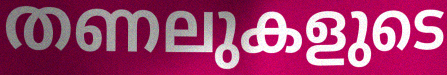
തണലുകളുടെ